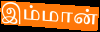
இம்மான்